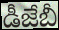
డీజేబీ